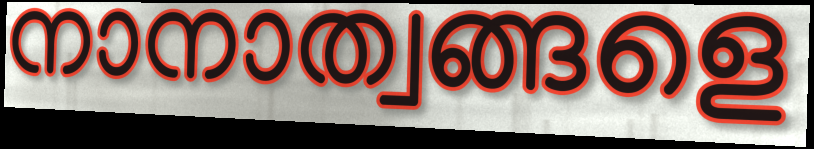
നാനാത്വങ്ങളെ